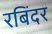
रबिंदर